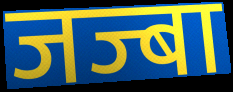
जज्बा